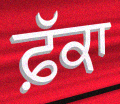
ਫ਼ੱਕਾ